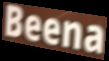
Beena